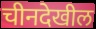
चीनदेखील